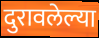
दुरावलेल्या